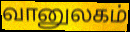
வானுலகம்